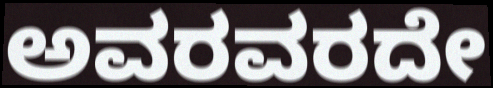
ಅವರವರದೇ